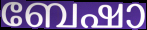
ബേഷാ